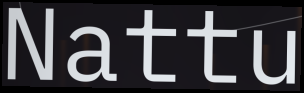
Nattu